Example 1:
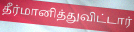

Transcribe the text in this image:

தீர்மானித்துவிட்டார்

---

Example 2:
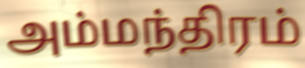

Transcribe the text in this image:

அம்மந்திரம்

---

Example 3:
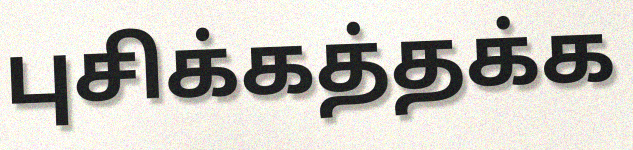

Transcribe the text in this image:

புசிக்கத்தக்க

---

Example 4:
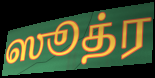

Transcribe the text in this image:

ஸூத்ர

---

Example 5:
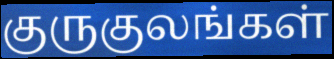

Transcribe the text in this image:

குருகுலங்கள்